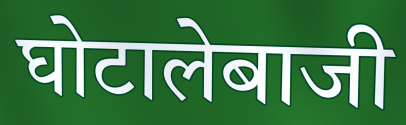
घोटालेबाजी